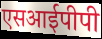
एसआईपीपी